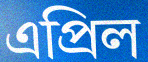
এপ্ৰিল